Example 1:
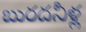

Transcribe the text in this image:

బురదనీళ్ల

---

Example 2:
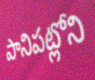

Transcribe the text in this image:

పానిపట్లోని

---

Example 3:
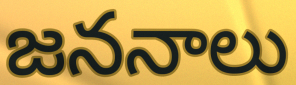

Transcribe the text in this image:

జననాలు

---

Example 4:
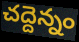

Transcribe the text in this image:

చద్దెన్నం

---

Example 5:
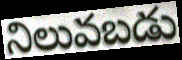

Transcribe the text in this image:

నిలువబడు